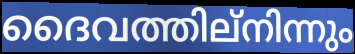
ദൈവത്തില്നിന്നും